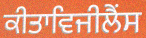
ਕੀਤਾਵਿਜੀਲੈਂਸ